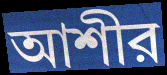
আশীর